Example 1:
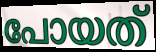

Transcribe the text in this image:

പോയത്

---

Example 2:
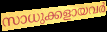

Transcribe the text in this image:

സാധുക്കളായവർ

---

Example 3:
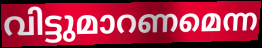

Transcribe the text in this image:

വിട്ടുമാറണമെന്ന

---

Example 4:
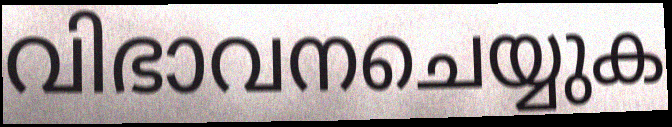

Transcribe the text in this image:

വിഭാവനചെയ്യുക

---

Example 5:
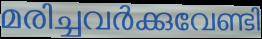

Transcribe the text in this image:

മരിച്ചവർക്കുവേണ്ടി